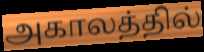
அகாலத்தில்